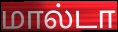
மால்டா